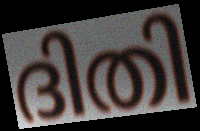
ദിതി